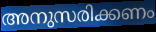
അനുസരിക്കണം